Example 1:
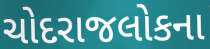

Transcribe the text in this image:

ચોદરાજલોકના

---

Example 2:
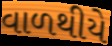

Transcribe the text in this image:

વાળથીયે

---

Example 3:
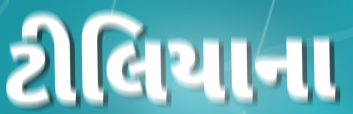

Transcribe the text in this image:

ટીલિયાના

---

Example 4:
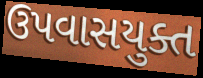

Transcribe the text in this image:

ઉપવાસયુક્ત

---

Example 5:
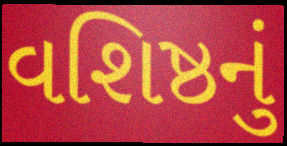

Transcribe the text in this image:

વશિષ્ઠનું